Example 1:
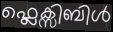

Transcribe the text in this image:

ഫ്ലെക്സിബിൾ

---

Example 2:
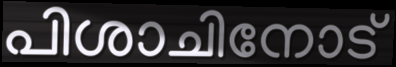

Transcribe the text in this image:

പിശാചിനോട്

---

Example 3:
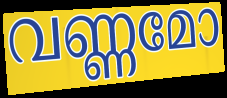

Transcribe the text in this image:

വണ്ണമോ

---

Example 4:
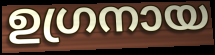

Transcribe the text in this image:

ഉഗ്രനായ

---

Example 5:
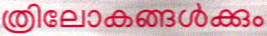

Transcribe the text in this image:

ത്രിലോകങ്ങൾക്കും